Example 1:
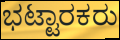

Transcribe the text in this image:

ಭಟ್ಟಾರಕರು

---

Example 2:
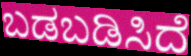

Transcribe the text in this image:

ಬಡಬಡಿಸಿದೆ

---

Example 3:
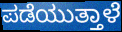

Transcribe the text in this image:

ಪಡೆಯುತ್ತಾಳೆ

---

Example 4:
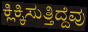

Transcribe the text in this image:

ಕ್ಲಿಕ್ಕಿಸುತ್ತಿದ್ದೆವು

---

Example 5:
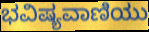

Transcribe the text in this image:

ಭವಿಷ್ಯವಾಣಿಯು